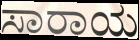
ಸಾರಾಯ